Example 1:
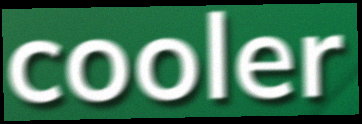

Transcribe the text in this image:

cooler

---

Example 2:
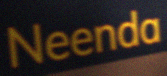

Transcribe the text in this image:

Neenda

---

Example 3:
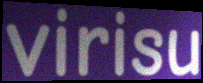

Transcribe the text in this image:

virisu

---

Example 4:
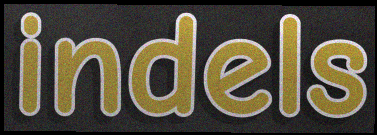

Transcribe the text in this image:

indels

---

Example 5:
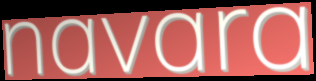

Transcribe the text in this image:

navara